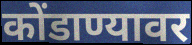
कोंडाण्यावर